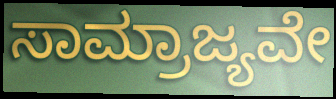
ಸಾಮ್ರಾಜ್ಯವೇ